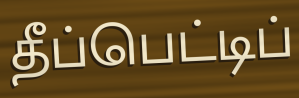
தீப்பெட்டிப்